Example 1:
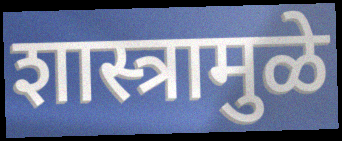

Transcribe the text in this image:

शास्त्रामुळे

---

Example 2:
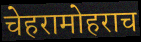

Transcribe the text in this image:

चेहरामोहराच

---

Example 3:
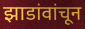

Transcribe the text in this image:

झाडांवांचून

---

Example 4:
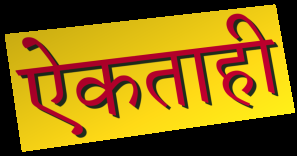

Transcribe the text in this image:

ऐकताही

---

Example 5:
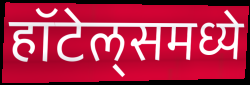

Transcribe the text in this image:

हॉटेल्समध्ये